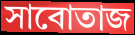
সাবোতাজ